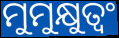
ମୁମୁକ୍ଷୁତ୍ୱଂ